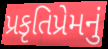
પ્રકૃતિપ્રેમનું